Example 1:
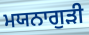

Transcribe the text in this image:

ਮਯਨਾਗੁੜੀ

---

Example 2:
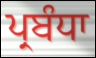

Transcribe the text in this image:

ਪ੍ਰਬੰਧਾ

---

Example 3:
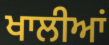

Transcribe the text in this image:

ਖਾਲੀਆਂ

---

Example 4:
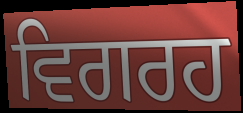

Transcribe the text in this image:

ਵਿਗਰਹ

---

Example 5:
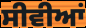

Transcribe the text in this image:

ਸੀਵੀਆਂ